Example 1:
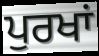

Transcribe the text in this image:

ਪੁਰਖਾਂ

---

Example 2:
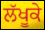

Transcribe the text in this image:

ਲੱਖੂਕੇ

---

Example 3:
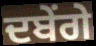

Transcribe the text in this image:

ਦਬੇਂਗੇ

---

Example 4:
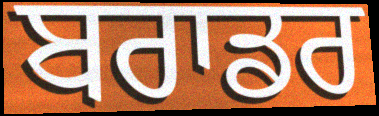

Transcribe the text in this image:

ਬਰਾਡਰ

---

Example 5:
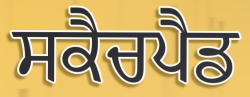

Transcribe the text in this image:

ਸਕੈਚਪੈਡ